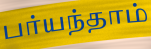
பர்யந்தாம்